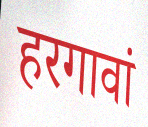
हरगावां